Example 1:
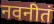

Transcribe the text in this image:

नवनीतं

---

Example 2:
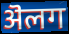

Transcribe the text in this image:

ऄलग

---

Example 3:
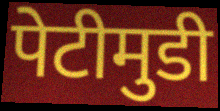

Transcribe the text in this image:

पेटीमुडी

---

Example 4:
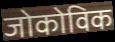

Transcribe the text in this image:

जोकोविक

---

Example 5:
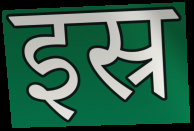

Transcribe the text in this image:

इस्र